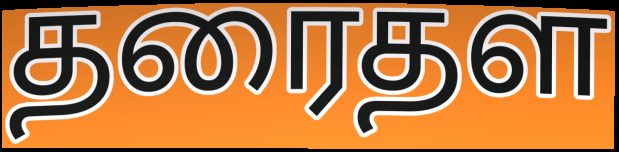
தரைதள